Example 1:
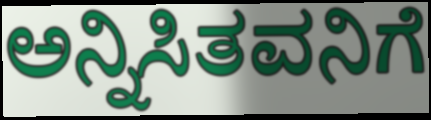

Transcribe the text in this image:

ಅನ್ನಿಸಿತವನಿಗೆ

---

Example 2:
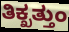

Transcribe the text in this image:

ತಿಕ್ಖತ್ತುಂ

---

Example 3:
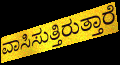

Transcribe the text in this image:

ವಾಸಿಸುತ್ತಿರುತ್ತಾರೆ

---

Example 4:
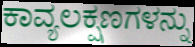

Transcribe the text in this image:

ಕಾವ್ಯಲಕ್ಷಣಗಳನ್ನು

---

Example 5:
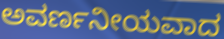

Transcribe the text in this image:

ಅವರ್ಣನೀಯವಾದ